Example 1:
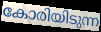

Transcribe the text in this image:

കോരിയിടുന്ന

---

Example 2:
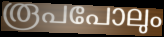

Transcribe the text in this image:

രൂപപോലും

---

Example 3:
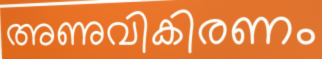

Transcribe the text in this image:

അണുവികിരണം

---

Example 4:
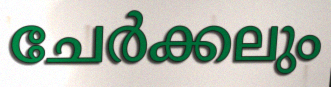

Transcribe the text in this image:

ചേർക്കലും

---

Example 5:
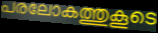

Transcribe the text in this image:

പരലോകത്തുകൂടെ